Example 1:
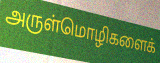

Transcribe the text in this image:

அருள்மொழிகளைக்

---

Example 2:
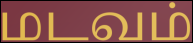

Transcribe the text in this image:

மடவம்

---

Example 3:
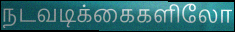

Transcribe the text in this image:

நடவடிக்கைகளிலோ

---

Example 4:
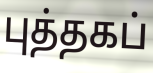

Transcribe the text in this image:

புத்தகப்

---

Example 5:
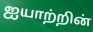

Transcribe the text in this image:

ஐயாற்றின்